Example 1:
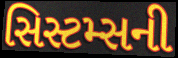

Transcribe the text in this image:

સિસ્ટમ્સની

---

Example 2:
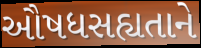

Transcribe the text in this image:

ઔષધસહ્યતાને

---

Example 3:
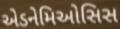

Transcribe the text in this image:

એડનેમિઓસિસ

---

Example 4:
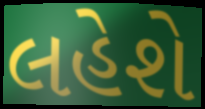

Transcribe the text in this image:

લહેશે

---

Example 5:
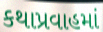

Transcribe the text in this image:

કથાપ્રવાહમાં